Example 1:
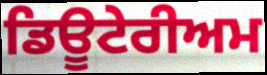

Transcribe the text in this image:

ਡਿਊਟੇਰੀਅਮ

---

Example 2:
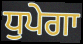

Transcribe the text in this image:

ਧੁਪੇਗਾ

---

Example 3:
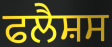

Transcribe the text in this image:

ਫਲੈਸ਼ਸ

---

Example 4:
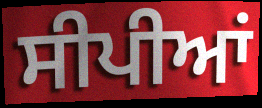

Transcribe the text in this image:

ਸੀਪੀਆਂ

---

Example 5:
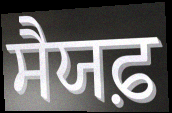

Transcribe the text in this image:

ਸੈਯਫ਼